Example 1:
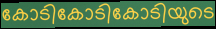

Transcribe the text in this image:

കോടികോടികോടിയുടെ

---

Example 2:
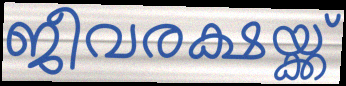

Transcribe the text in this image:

ജീവരക്ഷയ്ക്ക്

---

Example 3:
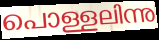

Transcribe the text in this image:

പൊള്ളലിന്നു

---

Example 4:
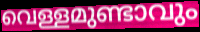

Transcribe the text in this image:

വെള്ളമുണ്ടാവും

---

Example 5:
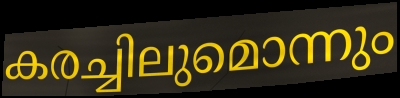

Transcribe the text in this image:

കരച്ചിലുമൊന്നും